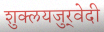
शुक्लयजुर्वेदी